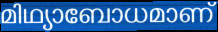
മിഥ്യാബോധമാണ്